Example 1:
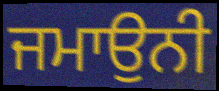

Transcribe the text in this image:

ਜਮਾਉਨੀ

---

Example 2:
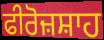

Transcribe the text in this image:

ਫੀਰੋਜ਼ਸ਼ਾਹ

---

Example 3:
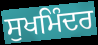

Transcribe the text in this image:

ਸੁਖਮਿੰਦਰ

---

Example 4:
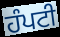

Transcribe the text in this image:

ਹੰਪਟੀ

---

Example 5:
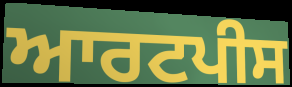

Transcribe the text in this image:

ਆਰਟਪੀਸ